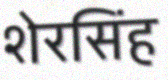
शेरसिंह